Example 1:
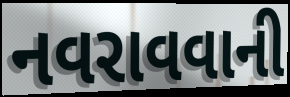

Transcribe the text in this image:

નવરાવવાની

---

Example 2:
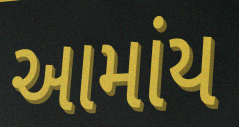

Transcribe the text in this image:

આમાંય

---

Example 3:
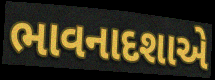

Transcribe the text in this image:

ભાવનાદશાએ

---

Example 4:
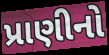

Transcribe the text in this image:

પ્રાણીનો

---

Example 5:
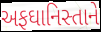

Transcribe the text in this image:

અફઘાનિસ્તાને